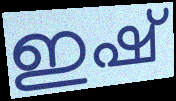
ഇഷ്